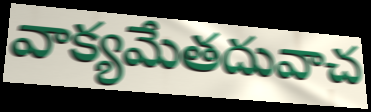
వాక్యమేతదువాచ